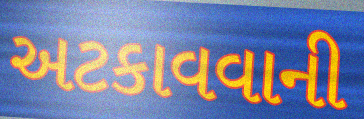
અટકાવવાની